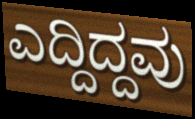
ಎದ್ದಿದ್ದವು